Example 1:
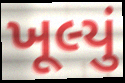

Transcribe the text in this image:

ખૂલ્યું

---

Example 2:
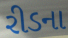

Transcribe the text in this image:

રીડના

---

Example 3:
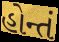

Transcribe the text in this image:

હોન્તં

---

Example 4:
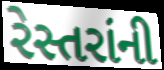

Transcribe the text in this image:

રેસ્તરાંની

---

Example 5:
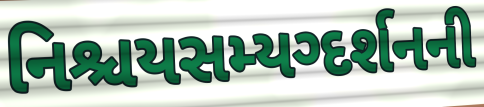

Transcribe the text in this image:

નિશ્ચયસમ્યગ્દર્શનની